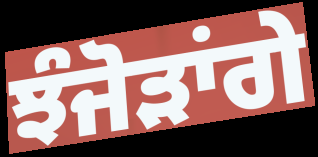
ਝੰਜੋੜਾਂਗੇ